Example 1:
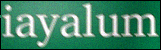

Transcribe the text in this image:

iayalum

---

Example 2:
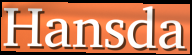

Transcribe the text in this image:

Hansda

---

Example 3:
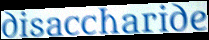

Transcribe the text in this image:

disaccharide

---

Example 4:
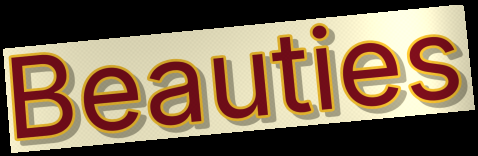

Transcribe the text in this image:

Beauties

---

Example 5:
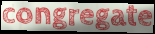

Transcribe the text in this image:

congregate